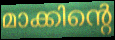
മാക്കിന്റെ